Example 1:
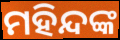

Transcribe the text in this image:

ମହିନ୍ଦଙ୍କ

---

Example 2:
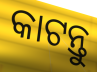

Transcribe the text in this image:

କାଟନ୍ତୁ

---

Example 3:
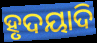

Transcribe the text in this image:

ହୃଦୟାଦି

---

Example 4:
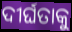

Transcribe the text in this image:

ଦୀର୍ଘତାକୁ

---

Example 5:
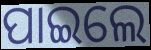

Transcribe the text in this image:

ପାଇଲେ